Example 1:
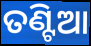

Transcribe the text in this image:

ତଣ୍ଟିଆ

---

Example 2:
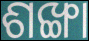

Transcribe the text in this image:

ଶଙ୍ଖା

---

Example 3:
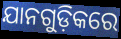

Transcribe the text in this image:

ଯାନଗୁଡ଼ିକରେ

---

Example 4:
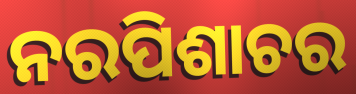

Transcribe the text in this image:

ନରପିଶାଚର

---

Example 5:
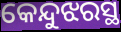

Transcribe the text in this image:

କେନ୍ଦୁଝରସ୍ଥ